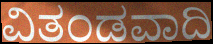
ವಿತಂಡವಾದಿ